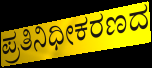
ಪ್ರತಿನಿಧೀಕರಣದ